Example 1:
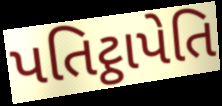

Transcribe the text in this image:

પતિટ્ઠાપેતિ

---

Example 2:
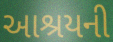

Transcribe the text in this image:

આશ્રયની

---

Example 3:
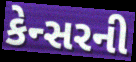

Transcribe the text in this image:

કેન્સરની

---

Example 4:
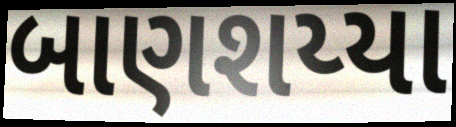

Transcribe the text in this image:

બાણશય્યા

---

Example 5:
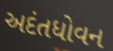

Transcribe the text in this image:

અદંતધોવન